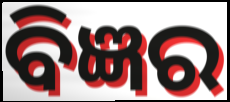
ବିଜ୍ଞର